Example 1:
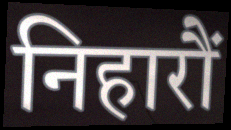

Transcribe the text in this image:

निहारौं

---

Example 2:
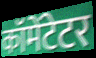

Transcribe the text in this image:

कॉमेंटेटर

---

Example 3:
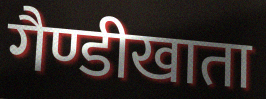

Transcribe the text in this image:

गैण्डीखाता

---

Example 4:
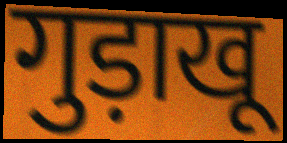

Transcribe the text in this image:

गुड़ाखू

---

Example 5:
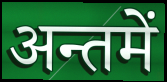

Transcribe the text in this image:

अन्तमें